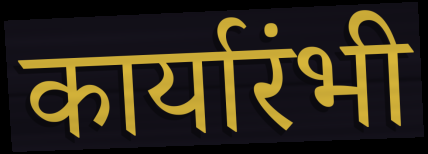
कार्यारंभी